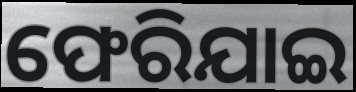
ଫେରିଯାଇ